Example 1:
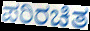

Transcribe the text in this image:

ಪರಿರಚಿತ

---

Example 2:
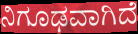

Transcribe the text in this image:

ನಿಗೂಢವಾಗಿದೆ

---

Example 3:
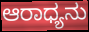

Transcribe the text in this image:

ಆರಾಧ್ಯನು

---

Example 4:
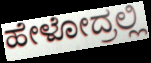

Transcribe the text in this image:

ಹೇಳೋದ್ರಲ್ಲಿ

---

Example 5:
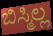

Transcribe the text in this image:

ಬಿಸ್ಮಿಲ್ಲ